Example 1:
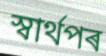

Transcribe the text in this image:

স্বাৰ্থপৰ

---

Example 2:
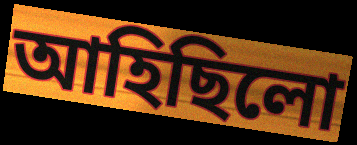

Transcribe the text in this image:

আহিছিলো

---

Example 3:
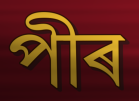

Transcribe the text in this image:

পীৰ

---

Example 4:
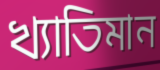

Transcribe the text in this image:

খ্যাতিমান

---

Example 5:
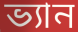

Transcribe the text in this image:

ভ্যান